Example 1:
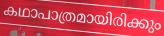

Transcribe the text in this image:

കഥാപാത്രമായിരിക്കും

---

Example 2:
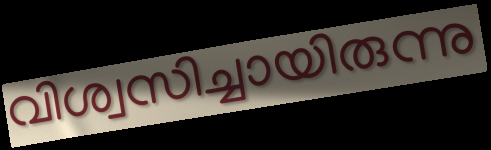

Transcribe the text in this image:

വിശ്വസിച്ചായിരുന്നു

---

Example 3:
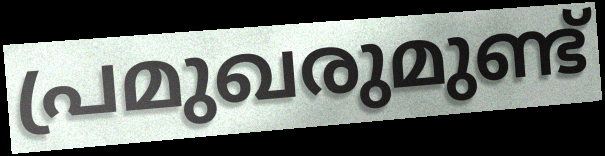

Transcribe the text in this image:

പ്രമുഖരുമുണ്ട്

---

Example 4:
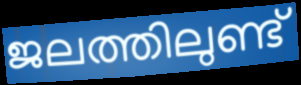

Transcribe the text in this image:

ജലത്തിലുണ്ട്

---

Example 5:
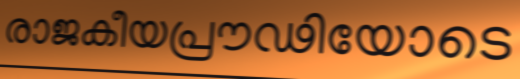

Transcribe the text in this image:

രാജകീയപ്രൗഢിയോടെ